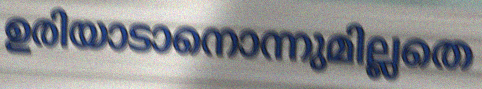
ഉരിയാടാനൊന്നുമില്ലതെ